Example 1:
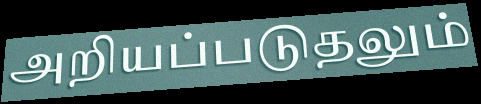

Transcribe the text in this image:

அறியப்படுதலும்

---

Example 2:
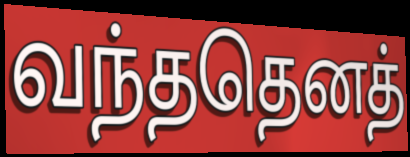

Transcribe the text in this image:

வந்ததெனத்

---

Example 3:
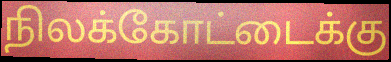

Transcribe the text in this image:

நிலக்கோட்டைக்கு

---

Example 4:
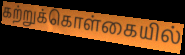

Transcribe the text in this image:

கற்றுக்கொள்கையில்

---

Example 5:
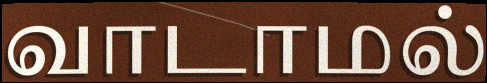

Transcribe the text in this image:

வாடாமல்